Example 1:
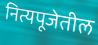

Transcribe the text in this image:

नित्यपूजेतील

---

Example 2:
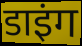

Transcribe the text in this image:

डाइंग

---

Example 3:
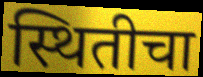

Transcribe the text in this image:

स्थितीचा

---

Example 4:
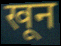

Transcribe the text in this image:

खून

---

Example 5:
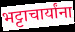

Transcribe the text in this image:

भट्टाचार्यांना